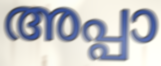
അപ്പാ